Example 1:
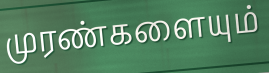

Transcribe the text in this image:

முரண்களையும்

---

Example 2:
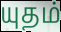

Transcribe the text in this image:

யுதம்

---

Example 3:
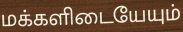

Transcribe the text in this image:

மக்களிடையேயும்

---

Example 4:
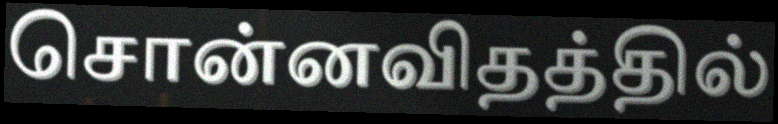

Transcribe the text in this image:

சொன்னவிதத்தில்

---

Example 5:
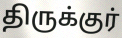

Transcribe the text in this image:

திருக்குர்